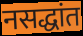
नसद्धांत